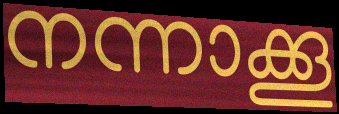
നന്നാക്കൂ